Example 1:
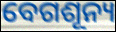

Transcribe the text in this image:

ବେଗଶୂନ୍ୟ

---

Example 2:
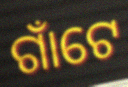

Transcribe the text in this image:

ଗାଁଟେ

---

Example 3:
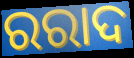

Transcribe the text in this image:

ରରାଦ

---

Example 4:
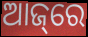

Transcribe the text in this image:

ଆଜ୍‌ରେ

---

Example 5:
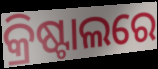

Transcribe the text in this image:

କ୍ରିଷ୍ଟାଲରେ